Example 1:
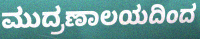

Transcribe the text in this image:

ಮುದ್ರಣಾಲಯದಿಂದ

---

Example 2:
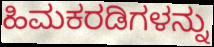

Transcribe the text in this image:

ಹಿಮಕರಡಿಗಳನ್ನು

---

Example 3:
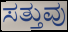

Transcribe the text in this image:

ಸತ್ತುವು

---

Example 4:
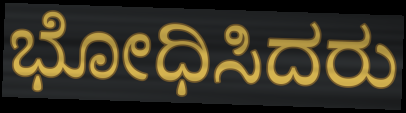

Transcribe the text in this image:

ಭೋಧಿಸಿದರು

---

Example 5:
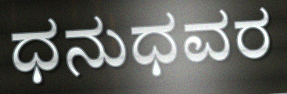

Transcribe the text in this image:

ಧನುಧವರ